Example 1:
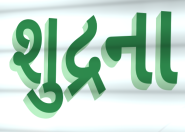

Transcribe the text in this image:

શુદ્રના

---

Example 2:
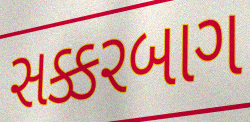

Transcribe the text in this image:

સક્કરબાગ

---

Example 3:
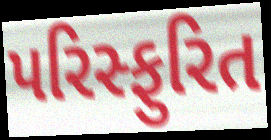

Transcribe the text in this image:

પરિસ્ફુરિત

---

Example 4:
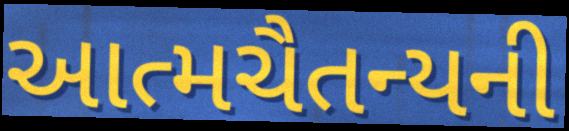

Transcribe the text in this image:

આત્મચૈતન્યની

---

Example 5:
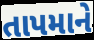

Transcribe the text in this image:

તાપમાને